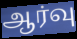
ஆர்வு